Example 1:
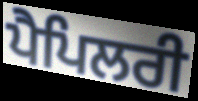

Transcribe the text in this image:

ਪੈਪਿਲਰੀ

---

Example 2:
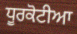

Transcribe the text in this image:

ਧੂਰਕੋਟੀਆ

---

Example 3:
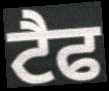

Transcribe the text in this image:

ਟੈਫ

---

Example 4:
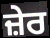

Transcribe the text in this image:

ਜ਼ੇਰ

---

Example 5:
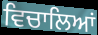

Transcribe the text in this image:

ਵਿਚਾਲਿਆਂ